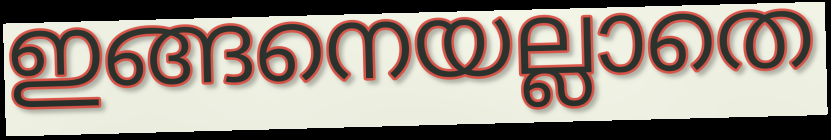
ഇങ്ങനെയല്ലാതെ